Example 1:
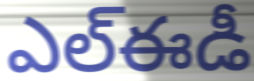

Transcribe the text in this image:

ఎల్ఈడీ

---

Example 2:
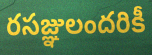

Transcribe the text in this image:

రసజ్ఞులందరికీ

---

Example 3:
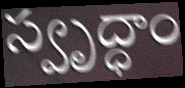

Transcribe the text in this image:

స్వృద్ధాం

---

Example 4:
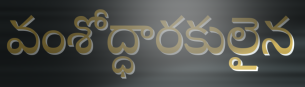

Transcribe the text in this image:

వంశోద్ధారకులైన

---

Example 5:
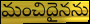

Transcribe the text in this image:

మంచిదైనను